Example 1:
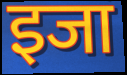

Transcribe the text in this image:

इजा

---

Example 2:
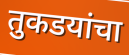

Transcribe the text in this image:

तुकडयांचा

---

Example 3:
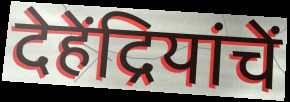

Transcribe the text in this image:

देहेंद्रियांचें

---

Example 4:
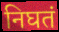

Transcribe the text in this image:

निघतं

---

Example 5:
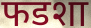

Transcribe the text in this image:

फडशा